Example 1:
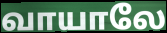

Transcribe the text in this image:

வாயாலே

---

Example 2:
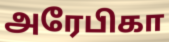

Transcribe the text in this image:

அரேபிகா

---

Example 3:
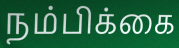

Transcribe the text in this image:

நம்பிக்கை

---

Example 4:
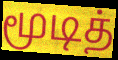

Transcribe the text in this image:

மூடித்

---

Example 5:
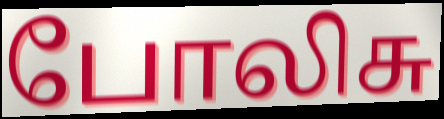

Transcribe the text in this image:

போலிசு